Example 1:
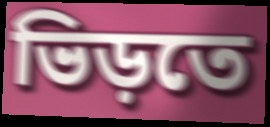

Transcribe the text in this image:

ভিড়তে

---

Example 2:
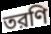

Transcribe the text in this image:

তরণি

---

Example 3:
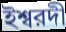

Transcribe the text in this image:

ইশ্বরদী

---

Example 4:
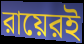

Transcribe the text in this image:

রায়েরই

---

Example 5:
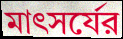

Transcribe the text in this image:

মাৎসর্যের